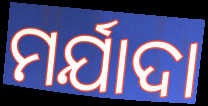
ମର୍ଯାଦା